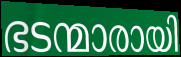
ഭടന്മാരായി